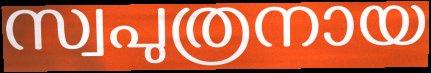
സ്വപുത്രനായ